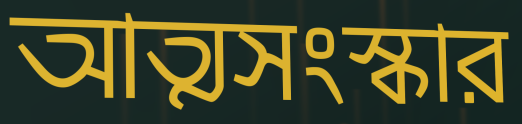
আত্মসংস্কার